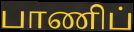
பாணிப்